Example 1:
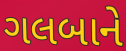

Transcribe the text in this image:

ગલબાને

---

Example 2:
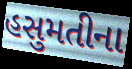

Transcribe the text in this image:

હસુમતીના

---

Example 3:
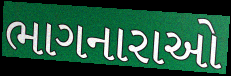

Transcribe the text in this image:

ભાગનારાઓ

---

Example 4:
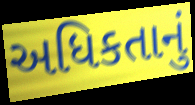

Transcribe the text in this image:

અધિકતાનું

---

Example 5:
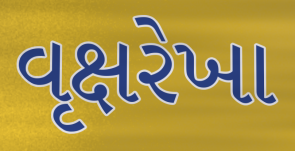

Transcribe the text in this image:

વૃક્ષરેખા